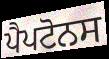
ਪੈਪਟੋਨਸ